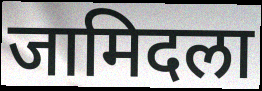
जामिदला